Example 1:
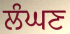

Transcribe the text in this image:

ਲੰਘਣ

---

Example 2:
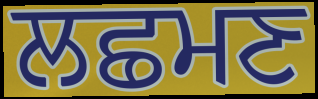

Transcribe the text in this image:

ਲਛਮਣ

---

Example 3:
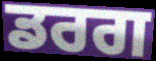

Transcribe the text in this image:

ਡਰਗ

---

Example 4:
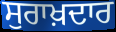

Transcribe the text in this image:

ਸੁਰਾਖ਼ਦਾਰ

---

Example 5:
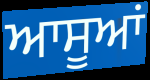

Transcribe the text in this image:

ਆਸੂਆਂ